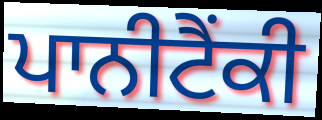
ਪਾਨੀਟੈਂਕੀ